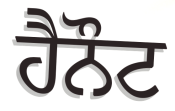
ਹੈਨੌਟ